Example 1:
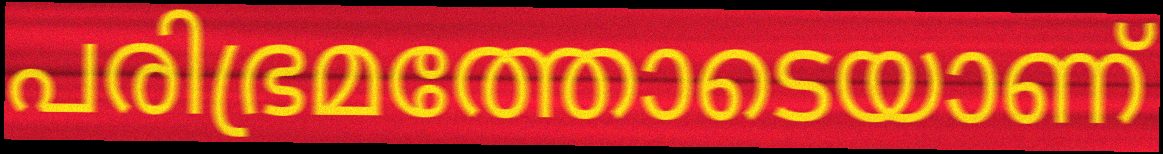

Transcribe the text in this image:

പരിഭ്രമത്തോടെയാണ്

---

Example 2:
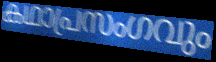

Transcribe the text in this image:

കഥാപ്രസംഗവും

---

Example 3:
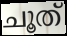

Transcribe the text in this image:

ചൂത്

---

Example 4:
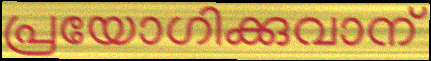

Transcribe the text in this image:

പ്രയോഗിക്കുവാന്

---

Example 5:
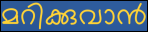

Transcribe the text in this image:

മറിക്കുവാൻ